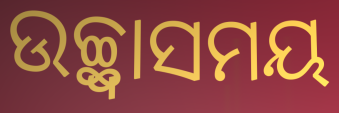
ଉଚ୍ଛ୍ଵାସମୟ